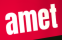
amet